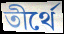
তীর্থে